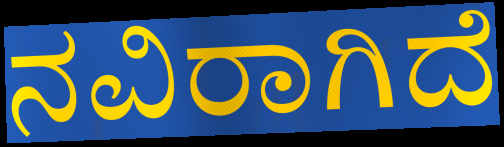
ನವಿರಾಗಿದೆ